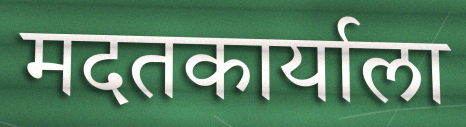
मदतकार्याला